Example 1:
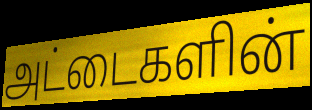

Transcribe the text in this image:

அட்டைகளின்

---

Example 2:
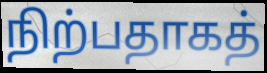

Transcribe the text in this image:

நிற்பதாகத்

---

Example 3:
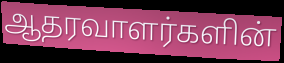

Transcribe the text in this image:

ஆதரவாளர்களின்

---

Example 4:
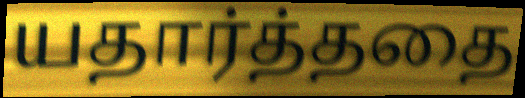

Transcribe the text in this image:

யதார்த்ததை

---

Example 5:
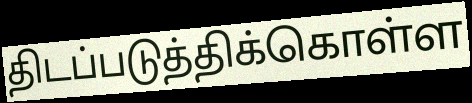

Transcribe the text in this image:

திடப்படுத்திக்கொள்ள